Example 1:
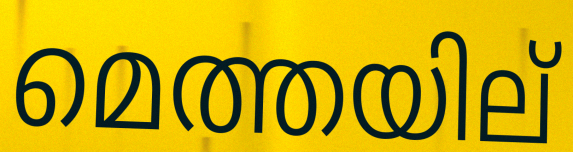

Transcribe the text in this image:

മെത്തയില്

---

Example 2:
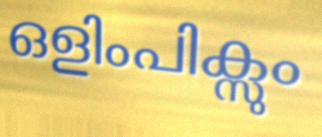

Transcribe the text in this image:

ഒളിംപിക്സും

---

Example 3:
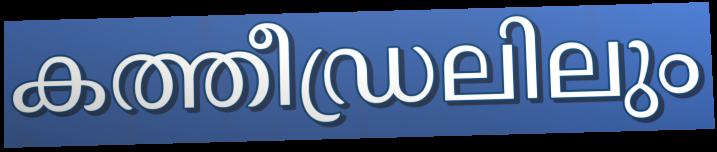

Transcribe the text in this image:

കത്തീഡ്രലിലും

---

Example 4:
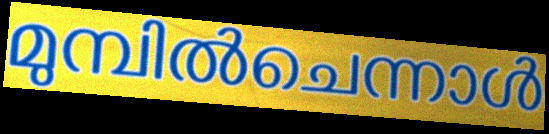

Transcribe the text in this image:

മുമ്പിൽചെന്നാൾ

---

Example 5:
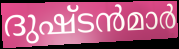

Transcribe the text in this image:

ദുഷ്ടൻമാർ